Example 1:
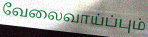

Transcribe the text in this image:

வேலைவாய்ப்பும்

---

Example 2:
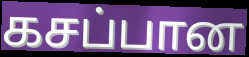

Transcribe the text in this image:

கசப்பான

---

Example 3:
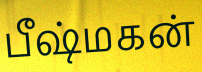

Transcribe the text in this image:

பீஷ்மகன்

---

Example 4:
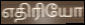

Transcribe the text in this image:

எதிரியோ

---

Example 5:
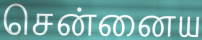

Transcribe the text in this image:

சென்னைய